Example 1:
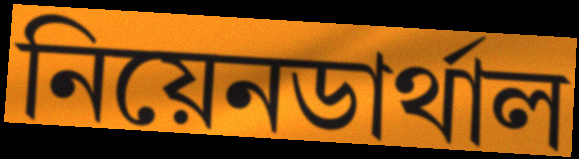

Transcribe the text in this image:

নিয়েনডার্থাল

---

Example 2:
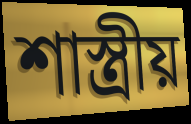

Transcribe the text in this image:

শাস্ত্রীয়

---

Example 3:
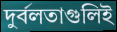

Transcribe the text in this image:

দুর্বলতাগুলিই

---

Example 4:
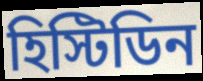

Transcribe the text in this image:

হিস্টিডিন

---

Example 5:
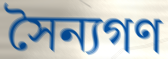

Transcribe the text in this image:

সৈন্যগণ